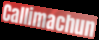
Callimachun